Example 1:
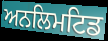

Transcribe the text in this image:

ਅਨਲਿਮਟਿਡ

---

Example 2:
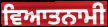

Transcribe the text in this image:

ਵਿਆਤਨਾਮੀ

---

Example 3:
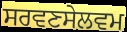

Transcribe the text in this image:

ਸਰਵਣਸੇਲਵਮ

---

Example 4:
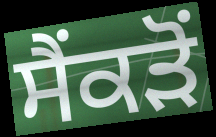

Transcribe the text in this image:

ਸੈਂਕੜੋਂ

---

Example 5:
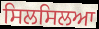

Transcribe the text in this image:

ਸਿਲਸਿਲਆ